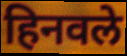
हिनवले